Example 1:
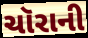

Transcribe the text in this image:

ચૉરાની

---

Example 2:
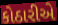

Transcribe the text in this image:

કોઠારીએ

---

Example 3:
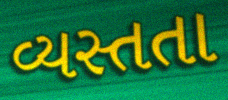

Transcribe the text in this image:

વ્યસ્તતા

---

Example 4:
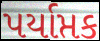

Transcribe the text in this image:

પર્યાપ્તક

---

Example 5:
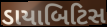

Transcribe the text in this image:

ડાયાબિટિસ